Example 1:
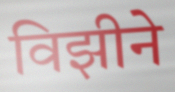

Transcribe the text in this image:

विझीने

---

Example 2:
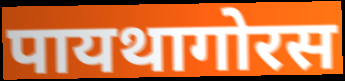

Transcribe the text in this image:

पायथागोरस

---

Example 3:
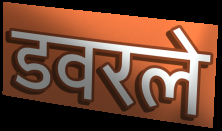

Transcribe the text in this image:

डवरले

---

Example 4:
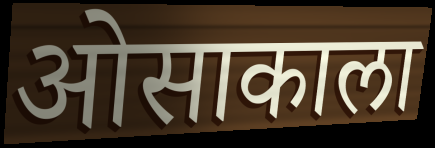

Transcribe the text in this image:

ओसाकाला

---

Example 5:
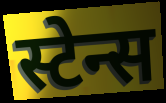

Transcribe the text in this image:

स्टेन्स